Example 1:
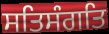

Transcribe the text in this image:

ਸਤਿਸੰਗਤਿ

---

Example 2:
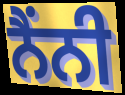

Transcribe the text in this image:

ਨੈਂਨੀ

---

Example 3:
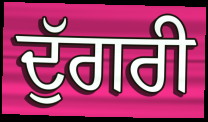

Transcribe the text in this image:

ਦੁੱਗਰੀ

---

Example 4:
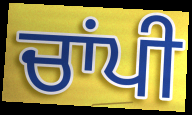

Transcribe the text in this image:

ਚਾਂਪੀ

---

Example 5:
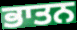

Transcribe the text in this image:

ਭਾਤਨ